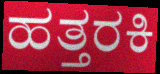
ಹತ್ತರಕಿ